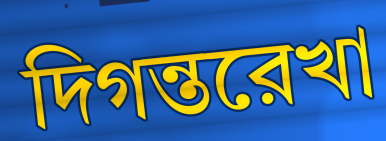
দিগন্তরেখা